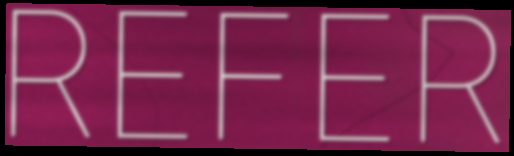
REFER